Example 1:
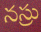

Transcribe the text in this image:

నస్రు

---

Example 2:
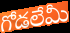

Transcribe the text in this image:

గోడలేమీ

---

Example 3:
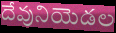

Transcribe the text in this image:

దేవునియెడల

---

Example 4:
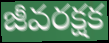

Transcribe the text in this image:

జీవరక్షక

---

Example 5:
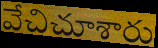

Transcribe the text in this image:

వేచిచూశారు